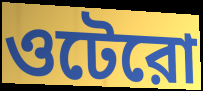
ওটেরো